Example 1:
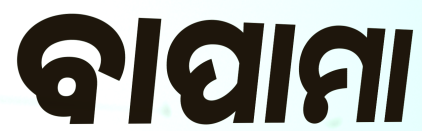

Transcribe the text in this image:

ବାପାମା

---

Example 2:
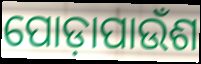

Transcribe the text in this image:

ପୋଡ଼ାପାଉଁଶ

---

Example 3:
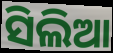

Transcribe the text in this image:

ସିଲିଆ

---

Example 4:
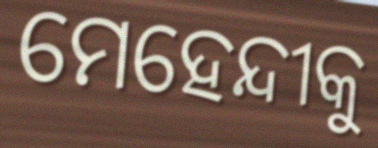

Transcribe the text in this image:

ମେହେନ୍ଦୀକୁ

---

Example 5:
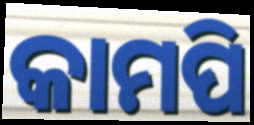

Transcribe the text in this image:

କାମପି